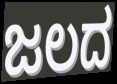
ಜಲದ